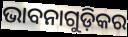
ଭାବନାଗୁଡ଼ିକର